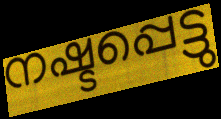
നഷ്ടപ്പെട്ടു